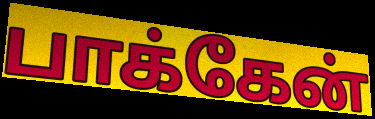
பாக்கேன்